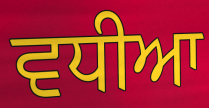
ਵਧੀਆ